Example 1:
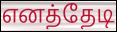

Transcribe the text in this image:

எனத்தேடி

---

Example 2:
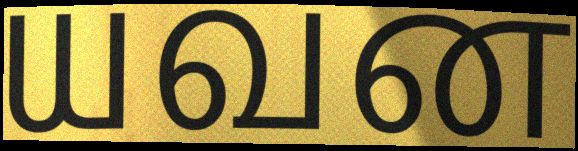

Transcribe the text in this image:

யவன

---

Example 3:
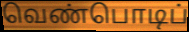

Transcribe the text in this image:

வெண்பொடிப்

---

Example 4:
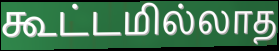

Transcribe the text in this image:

கூட்டமில்லாத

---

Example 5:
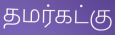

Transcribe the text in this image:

தமர்கட்கு